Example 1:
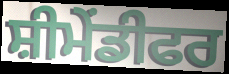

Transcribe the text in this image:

ਸ਼ੀਮੇਂਡੀਫਰ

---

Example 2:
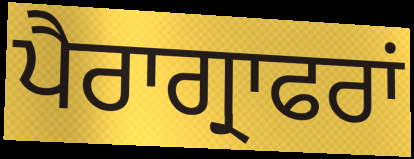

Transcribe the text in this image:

ਪੈਰਾਗ੍ਰਾਫਰਾਂ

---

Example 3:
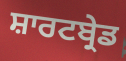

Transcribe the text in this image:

ਸ਼ਾਰਟਬ੍ਰੇਡ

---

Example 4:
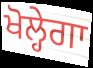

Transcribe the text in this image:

ਖੋਲ੍ਹੇਗਾ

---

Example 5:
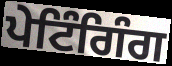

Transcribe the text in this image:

ਪੇਟਿੰਗਿੰਗ